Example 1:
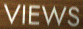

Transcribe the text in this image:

VIEWS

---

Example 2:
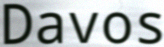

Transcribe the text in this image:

Davos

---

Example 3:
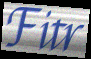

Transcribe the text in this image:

Fitr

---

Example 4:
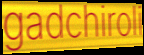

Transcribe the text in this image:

gadchiroli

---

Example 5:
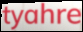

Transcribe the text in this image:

tyahre